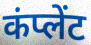
कंप्लेंट